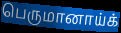
பெருமானாய்க்